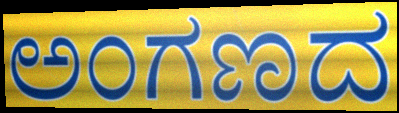
ಅಂಗಣದ